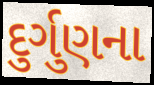
દુર્ગુણના